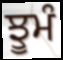
ਝੂਮੰ